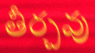
తీర్చవు